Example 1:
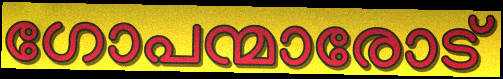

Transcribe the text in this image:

ഗോപന്മാരോട്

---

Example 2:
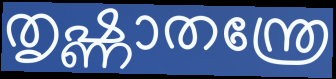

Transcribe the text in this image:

തൃഷ്ണാതന്ത്രേ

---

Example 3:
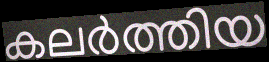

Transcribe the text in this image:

കലർത്തിയ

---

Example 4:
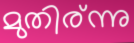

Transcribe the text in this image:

മുതിര്ന്നു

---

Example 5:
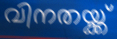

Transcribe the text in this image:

വിനതയ്ക്ക്